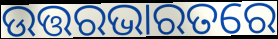
ଉତ୍ତରଭାରତରେ